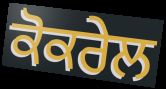
ਕੋਕਰੇਲ